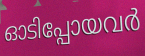
ഓടിപ്പോയവർ